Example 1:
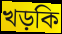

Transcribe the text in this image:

খড়কি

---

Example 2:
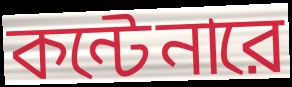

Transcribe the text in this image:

কন্টেনারে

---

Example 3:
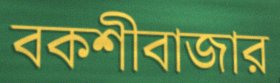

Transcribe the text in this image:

বকশীবাজার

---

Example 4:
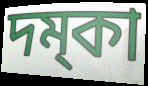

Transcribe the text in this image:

দম্‌কা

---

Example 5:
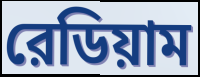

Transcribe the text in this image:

রেডিয়াম